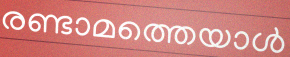
രണ്ടാമത്തെയാൾ